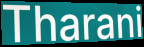
Tharani